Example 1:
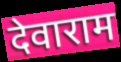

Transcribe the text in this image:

देवाराम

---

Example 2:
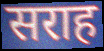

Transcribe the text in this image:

सराह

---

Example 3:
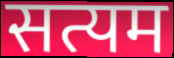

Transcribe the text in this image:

सत्यम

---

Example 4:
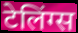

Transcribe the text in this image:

टेलिंग्स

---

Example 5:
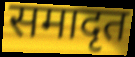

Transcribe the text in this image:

समादृत